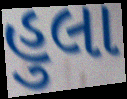
હુલા